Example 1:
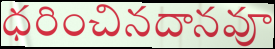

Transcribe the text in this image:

ధరించినదానవూ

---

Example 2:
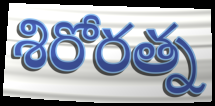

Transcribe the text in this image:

శిరోరత్న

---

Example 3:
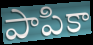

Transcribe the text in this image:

పాపికా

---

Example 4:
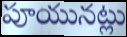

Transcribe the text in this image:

పూయునట్లు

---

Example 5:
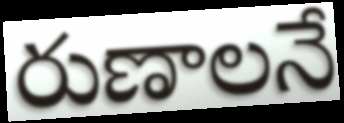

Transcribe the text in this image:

రుణాలనే